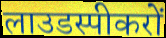
लाउडस्पीकरों